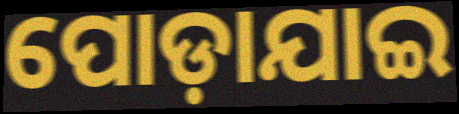
ପୋଡ଼ାଯାଇ